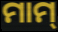
ମାମ୍